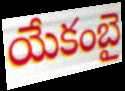
యేకంబై